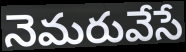
నెమరువేసే